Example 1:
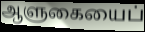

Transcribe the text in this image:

ஆளுகையைப்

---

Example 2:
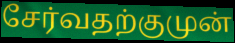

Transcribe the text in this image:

சேர்வதற்குமுன்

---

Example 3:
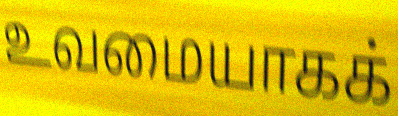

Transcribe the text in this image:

உவமையாகக்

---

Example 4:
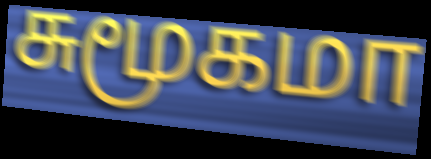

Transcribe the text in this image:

சுமூகமா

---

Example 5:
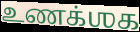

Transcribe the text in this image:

உணக்ஶக